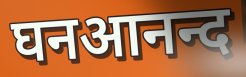
घनआनन्द